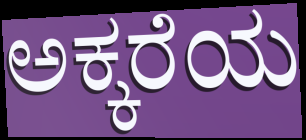
ಅಕ್ಕರೆಯ